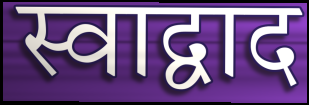
स्वाद्वाद